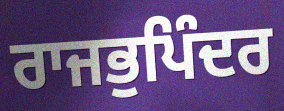
ਰਾਜਭੁਪਿੰਦਰ